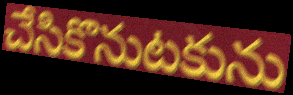
చేసికొనుటకును